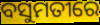
ବସୁମତୀରେ